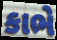
કાભે